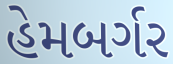
હેમબર્ગર